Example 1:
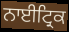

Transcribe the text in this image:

ਨਾਈਟ੍ਰਿਕ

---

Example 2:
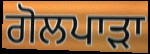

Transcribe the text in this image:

ਗੋਲਪਾੜਾ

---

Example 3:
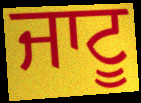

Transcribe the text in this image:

ਜਾਟੂ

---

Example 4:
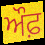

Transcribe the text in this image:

ਔਫ਼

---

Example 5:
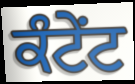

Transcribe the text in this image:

ਕੰਟੇਂਟ